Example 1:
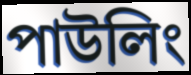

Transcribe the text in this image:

পাউলিং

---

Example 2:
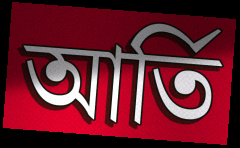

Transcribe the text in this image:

আর্তি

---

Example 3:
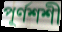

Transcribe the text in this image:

পূর্ণশশী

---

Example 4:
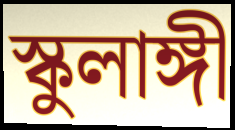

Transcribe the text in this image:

স্কুলাঙ্গী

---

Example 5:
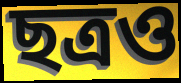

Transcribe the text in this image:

ছত্রও